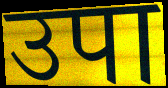
उपा